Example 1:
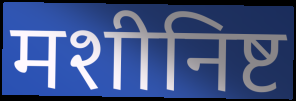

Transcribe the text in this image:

मशीनिष्ट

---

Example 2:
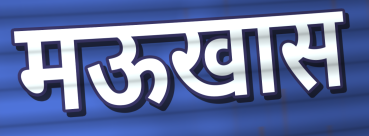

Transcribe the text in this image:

मऊखास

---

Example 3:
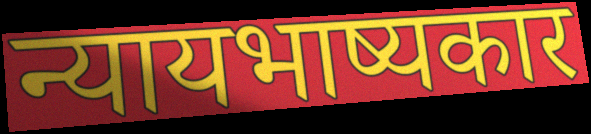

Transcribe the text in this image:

न्यायभाष्यकार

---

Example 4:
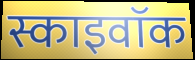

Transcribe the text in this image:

स्काइवॉक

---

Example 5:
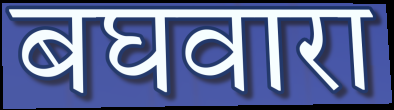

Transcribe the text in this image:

बघवारा